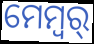
ମେମ୍ବର୍